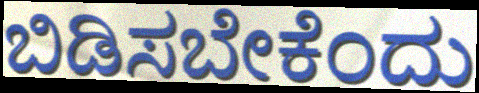
ಬಿಡಿಸಬೇಕೆಂದು